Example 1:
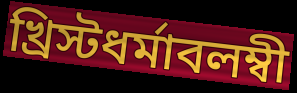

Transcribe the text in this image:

খ্রিস্টধর্মাবলম্বী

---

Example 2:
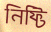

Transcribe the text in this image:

নিফ্টি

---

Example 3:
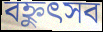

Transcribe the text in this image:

বহ্নুৎসব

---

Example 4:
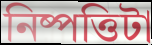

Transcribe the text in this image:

নিষ্পত্তিটা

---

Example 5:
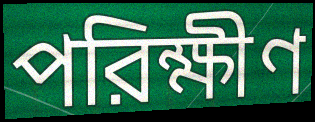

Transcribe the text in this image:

পরিক্ষীণ